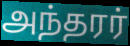
அந்தரர்